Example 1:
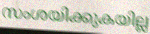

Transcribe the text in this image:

സംശയിക്കുകയില്ല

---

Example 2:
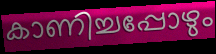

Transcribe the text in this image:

കാണിച്ചപ്പോഴും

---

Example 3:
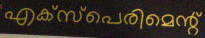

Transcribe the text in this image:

എക്സ്പെരിമെന്റ്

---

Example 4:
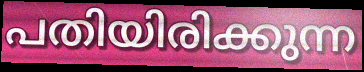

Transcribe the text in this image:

പതിയിരിക്കുന്ന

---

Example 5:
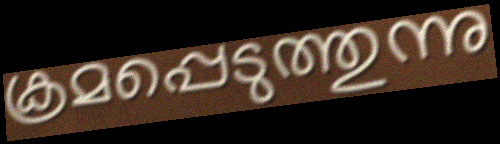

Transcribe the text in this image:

ക്രമപ്പെടുത്തുന്നു